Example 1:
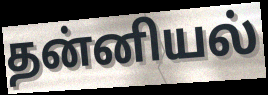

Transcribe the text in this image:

தன்னியல்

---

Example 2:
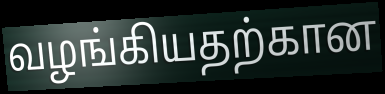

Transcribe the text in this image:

வழங்கியதற்கான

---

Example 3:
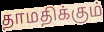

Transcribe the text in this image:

தாமதிக்கும்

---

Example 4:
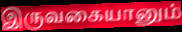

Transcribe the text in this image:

இருவகையானும்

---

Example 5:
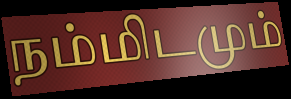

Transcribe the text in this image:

நம்மிடமும்